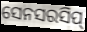
ସେନସରସିପ୍